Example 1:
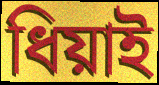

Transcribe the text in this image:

ধিয়াই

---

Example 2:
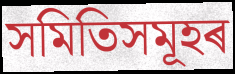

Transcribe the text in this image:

সমিতিসমূহৰ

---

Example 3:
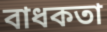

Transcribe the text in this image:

বাধকতা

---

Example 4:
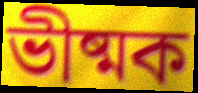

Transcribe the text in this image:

ভীষ্মক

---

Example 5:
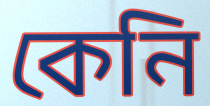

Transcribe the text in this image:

কেনি